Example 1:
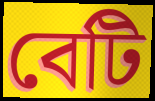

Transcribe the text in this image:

বেটি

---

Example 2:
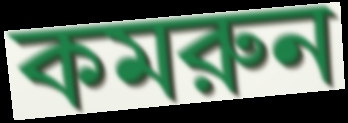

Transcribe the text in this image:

কমরুন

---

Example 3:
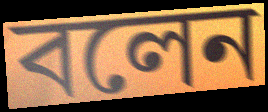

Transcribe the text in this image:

বলেন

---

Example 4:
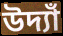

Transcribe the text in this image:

উদ্যাঁ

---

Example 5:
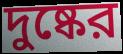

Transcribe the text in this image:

দুষ্কের